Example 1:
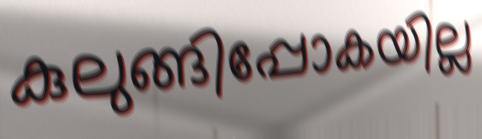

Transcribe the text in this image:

കുലുങ്ങിപ്പോകയില്ല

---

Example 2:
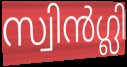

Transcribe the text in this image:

സ്വിൻഗ്ലി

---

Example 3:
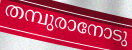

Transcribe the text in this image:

തമ്പുരാനോടു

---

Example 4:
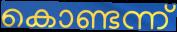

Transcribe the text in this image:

കൊണ്ടന്ന്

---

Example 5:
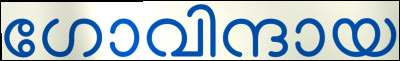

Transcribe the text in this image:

ഗോവിന്ദായ